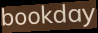
bookday